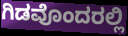
ಗಿಡವೊಂದರಲ್ಲಿ